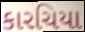
કારચિયા